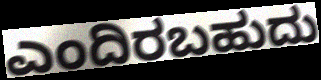
ಎಂದಿರಬಹುದು